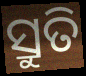
ସ୍ରୁତି